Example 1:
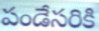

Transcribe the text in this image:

పండేసరికి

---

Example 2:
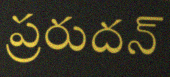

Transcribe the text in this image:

ప్రరుదన్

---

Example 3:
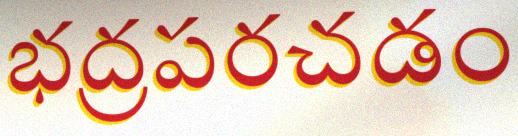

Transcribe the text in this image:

భద్రపరచడం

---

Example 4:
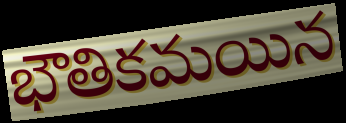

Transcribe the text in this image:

భౌతికమయిన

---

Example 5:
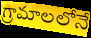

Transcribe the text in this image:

గ్రామాలలోనే